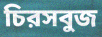
চিরসবুজ